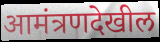
आमंत्रणदेखील